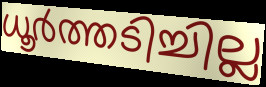
ധൂർത്തടിച്ചില്ല